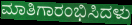
ಮಾತಿಗಾರಂಭಿಸಿದಳು